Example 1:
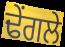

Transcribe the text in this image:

ਢੇਂਗਲੇ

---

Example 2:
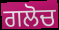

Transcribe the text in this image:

ਗਲੋਚ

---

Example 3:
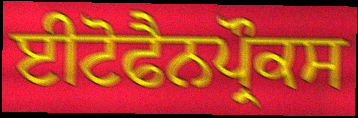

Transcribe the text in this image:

ਈਟੋਫੈਨਪ੍ਰੌਕਸ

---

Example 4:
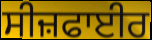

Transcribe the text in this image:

ਸੀਜ਼ਫਾਈਰ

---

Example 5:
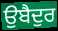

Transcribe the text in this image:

ਉਬੈਦੁਰ